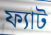
ফ্যাট